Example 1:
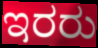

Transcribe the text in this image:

ಇರರು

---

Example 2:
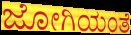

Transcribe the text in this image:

ಜೋಗಿಯಂತೆ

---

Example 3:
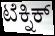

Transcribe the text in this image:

ಟೆಕ್ನಿಕ್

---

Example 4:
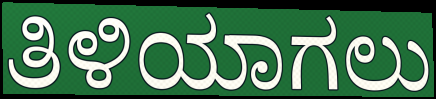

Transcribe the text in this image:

ತಿಳಿಯಾಗಲು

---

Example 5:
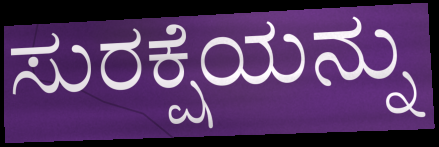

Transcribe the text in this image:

ಸುರಕ್ಷೆಯನ್ನು